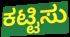
ಕಟ್ಟಿಸು